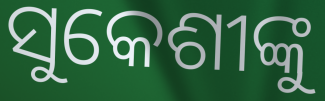
ସୁକେଶୀଙ୍କୁ